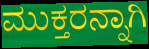
ಮುಕ್ತರನ್ನಾಗಿ